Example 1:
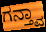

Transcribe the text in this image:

ಗನ್ತ್ವಾ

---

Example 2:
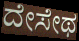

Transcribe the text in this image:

ದೇಸೇಥ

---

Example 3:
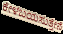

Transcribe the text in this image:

ಕೇಳಬಯಸುತ್ತೇನೆ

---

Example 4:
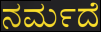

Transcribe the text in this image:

ನರ್ಮದೆ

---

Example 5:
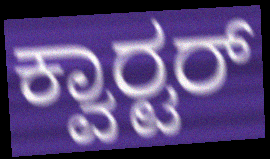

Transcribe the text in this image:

ಕ್ವಾರ‍್ಟರ್